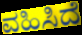
ವಹಿಸಿದೆ